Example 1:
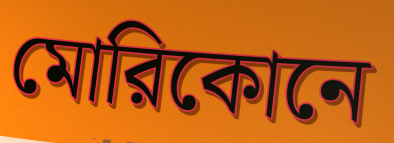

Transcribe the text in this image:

মোরিকোনে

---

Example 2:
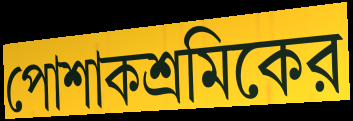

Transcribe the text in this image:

পোশাকশ্রমিকের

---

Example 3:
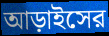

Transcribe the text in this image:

আড়াইসের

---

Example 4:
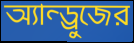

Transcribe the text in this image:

অ্যান্ড্রুজের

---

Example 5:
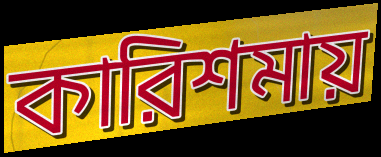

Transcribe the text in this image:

কারিশমায়